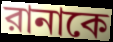
রানাকে